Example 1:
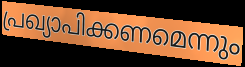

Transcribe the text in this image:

പ്രഖ്യാപിക്കണമെന്നും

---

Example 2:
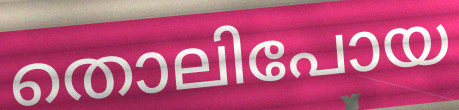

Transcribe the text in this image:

തൊലിപോയ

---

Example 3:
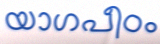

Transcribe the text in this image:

യാഗപീഠം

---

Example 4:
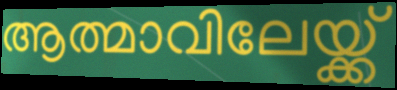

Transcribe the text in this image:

ആത്മാവിലേയ്ക്ക്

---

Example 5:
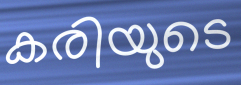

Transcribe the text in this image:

കരിയുടെ